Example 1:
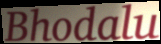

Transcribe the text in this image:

Bhodalu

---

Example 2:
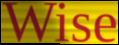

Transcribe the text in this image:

Wise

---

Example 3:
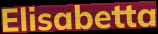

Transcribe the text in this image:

Elisabetta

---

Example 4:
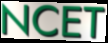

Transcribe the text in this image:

NCET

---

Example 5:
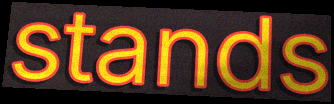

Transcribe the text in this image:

stands